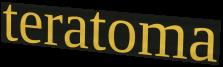
teratoma